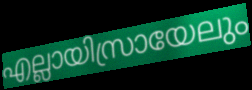
എല്ലായിസ്രായേലും